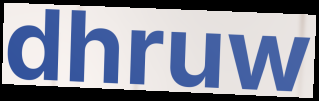
dhruw